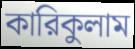
কারিকুলাম